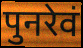
पुनरेवं